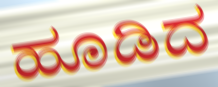
ಹೂಡಿದ